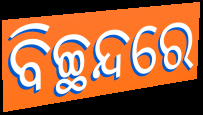
ବିଚ୍ଛନ୍ଦରେ